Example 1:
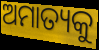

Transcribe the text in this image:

ଅମାତ୍ୟକୁ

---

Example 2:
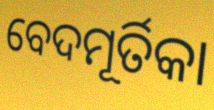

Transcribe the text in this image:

ବେଦମୂର୍ତିକା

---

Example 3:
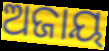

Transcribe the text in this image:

ଅଜାୟ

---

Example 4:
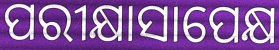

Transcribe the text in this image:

ପରୀକ୍ଷାସାପେକ୍ଷ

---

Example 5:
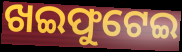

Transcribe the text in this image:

ଖଇଫୁଟେଇ